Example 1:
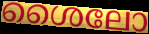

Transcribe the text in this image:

ശൈലോ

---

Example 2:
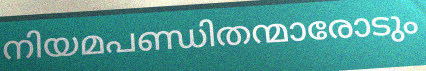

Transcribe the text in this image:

നിയമപണ്ഡിതന്മാരോടും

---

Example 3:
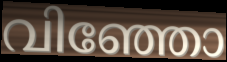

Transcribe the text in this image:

വിഞ്ഞോ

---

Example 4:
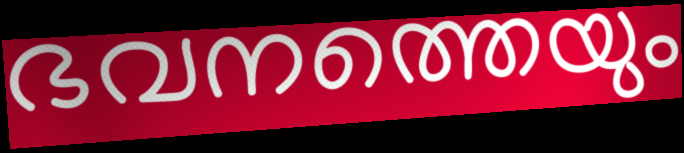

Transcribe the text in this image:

ഭവനത്തെയും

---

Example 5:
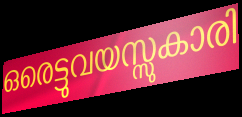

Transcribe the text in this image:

ഒരെട്ടുവയസ്സുകാരി